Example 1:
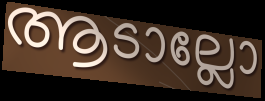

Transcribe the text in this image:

ആടാല്ലോ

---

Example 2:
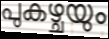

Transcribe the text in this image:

പുകഴ്ചയും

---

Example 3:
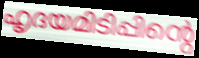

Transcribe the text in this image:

ഹൃദയമിടിപ്പിന്റെ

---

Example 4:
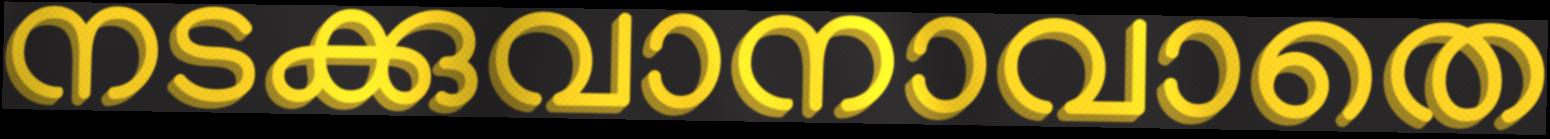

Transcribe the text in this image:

നടക്കുവാനാവാതെ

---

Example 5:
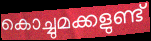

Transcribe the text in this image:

കൊച്ചുമക്കളുണ്ട്